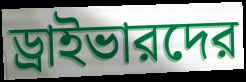
ড্রাইভারদের